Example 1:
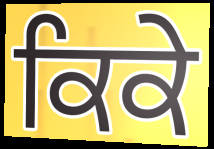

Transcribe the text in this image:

ਕਿਕੇ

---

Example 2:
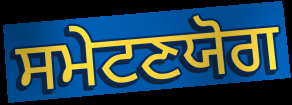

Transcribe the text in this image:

ਸਮੇਟਣਯੋਗ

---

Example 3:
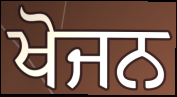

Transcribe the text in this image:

ਖੋਜਨ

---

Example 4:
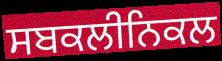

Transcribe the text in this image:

ਸਬਕਲੀਨਿਕਲ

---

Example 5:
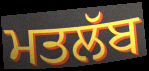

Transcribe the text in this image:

ਮਤਲੱਬ